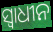
ସ୍ଵାଧୀନ